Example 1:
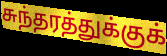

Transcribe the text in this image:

சுந்தரத்துக்குக்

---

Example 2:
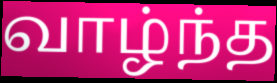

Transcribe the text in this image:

வாழ்ந்த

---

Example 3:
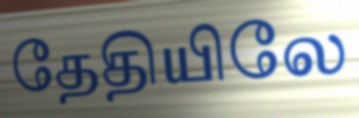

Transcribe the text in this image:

தேதியிலே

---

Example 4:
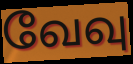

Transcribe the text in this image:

வேவு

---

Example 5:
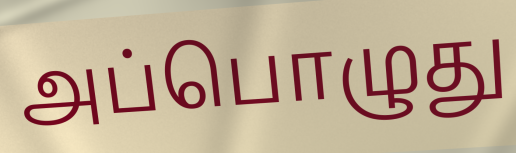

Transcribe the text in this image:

அப்பொழுது